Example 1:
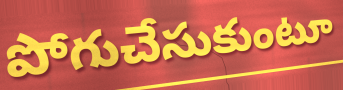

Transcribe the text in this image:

పోగుచేసుకుంటూ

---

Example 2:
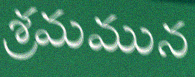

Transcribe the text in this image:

శ్రమమున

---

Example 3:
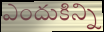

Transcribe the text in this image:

ఎందుకిన్ని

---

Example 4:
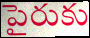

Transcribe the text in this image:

పైరుకు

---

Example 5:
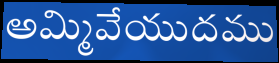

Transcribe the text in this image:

అమ్మివేయుదము